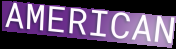
AMERICAN